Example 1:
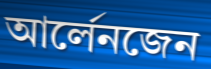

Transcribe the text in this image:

আৰ্লেনজেন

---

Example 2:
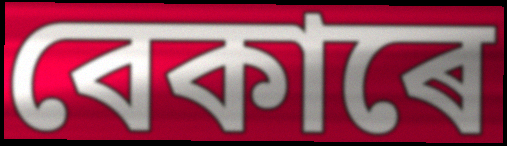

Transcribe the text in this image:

বেকাৰে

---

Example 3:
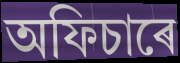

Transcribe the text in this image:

অফিচাৰে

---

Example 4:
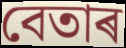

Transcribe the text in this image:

বেতাৰ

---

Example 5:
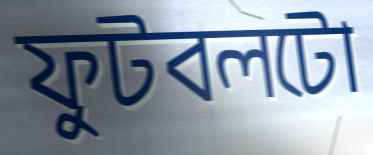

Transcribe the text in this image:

ফুটবলটো